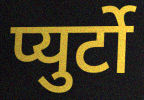
प्युर्टो